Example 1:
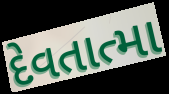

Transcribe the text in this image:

દેવતાત્મા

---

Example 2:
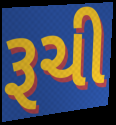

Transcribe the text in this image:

રૂચી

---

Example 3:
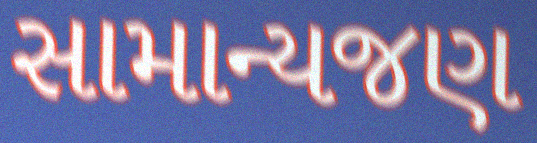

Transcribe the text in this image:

સામાન્યજણ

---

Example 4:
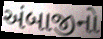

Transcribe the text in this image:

અંબાજીનો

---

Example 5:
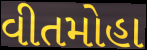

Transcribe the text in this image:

વીતમોહા